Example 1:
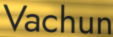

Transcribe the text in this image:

Vachun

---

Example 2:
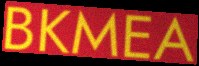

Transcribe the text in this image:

BKMEA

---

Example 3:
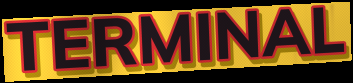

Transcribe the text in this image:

TERMINAL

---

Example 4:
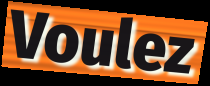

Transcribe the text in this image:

Voulez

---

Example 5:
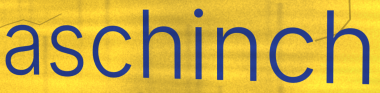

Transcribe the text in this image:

aschinch